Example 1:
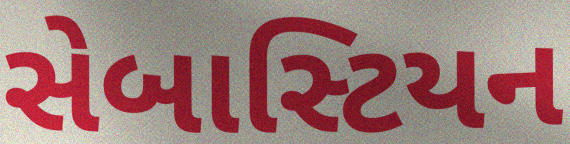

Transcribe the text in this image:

સેબાસ્ટિયન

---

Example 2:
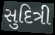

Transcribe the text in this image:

સુદિત્રી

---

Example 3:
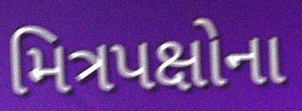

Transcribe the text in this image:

મિત્રપક્ષોના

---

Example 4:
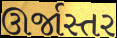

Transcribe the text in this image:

ઊર્જાસ્તર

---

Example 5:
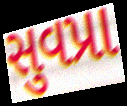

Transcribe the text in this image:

સુવપ્રા